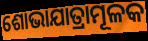
ଶୋଭାଯାତ୍ରାମୂଳକ